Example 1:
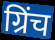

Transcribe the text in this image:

ग्रिंच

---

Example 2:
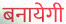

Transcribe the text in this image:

बनायेगी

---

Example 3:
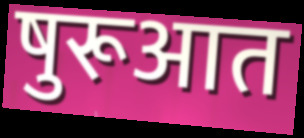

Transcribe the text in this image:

षुरूआत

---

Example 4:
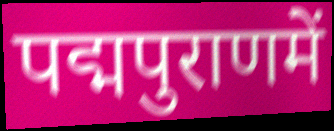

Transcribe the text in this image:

पद्मपुराणमें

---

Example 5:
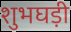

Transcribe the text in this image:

शुभघड़ी